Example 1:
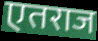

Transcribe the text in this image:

एतराज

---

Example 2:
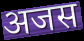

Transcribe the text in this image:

अजस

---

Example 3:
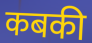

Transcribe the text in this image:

कबकी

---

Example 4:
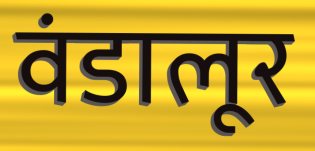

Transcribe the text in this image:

वंडालूर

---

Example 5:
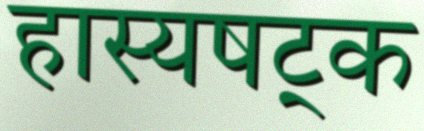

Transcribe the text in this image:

हास्यषट्क